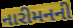
નારીમનની